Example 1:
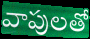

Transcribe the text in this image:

వాపులతో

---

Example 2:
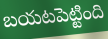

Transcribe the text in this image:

బయటపెట్టింది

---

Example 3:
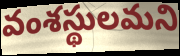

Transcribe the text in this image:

వంశస్థులమని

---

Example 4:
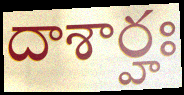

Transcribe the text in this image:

దాశార్హః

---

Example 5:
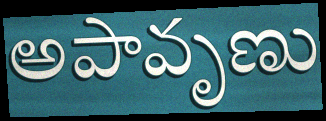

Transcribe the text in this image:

అపావృణు